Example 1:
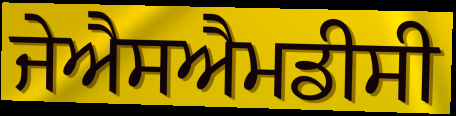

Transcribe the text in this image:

ਜੇਐਸਐਮਡੀਸੀ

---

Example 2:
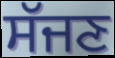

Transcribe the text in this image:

ਸੱਜਣ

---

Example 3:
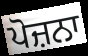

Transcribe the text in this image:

ਪੋਜ਼ਨਾ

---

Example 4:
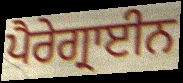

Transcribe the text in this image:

ਪੈਰੇਗ੍ਰਾਈਨ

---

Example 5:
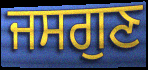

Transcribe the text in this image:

ਜਸਗੁਣ